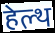
हेल्‍थ